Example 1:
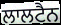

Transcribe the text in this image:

ਲਾਲਟੈਨ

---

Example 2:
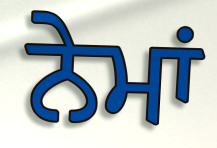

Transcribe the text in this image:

ਨੇਮਾਂ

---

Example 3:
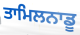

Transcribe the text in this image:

ਤਾਮਿਲਨਾਡੂ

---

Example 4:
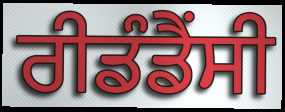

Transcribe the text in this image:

ਰੀਡੰਡੈਂਸੀ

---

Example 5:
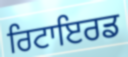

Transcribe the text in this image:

ਰਿਟਾਇਰਡ